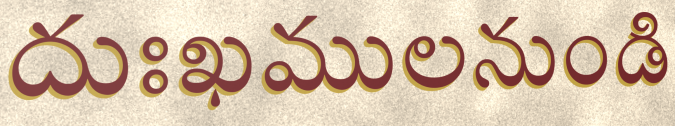
దుఃఖములనుండి